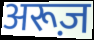
अरूज़